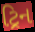
ટ્રિન